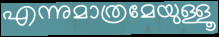
എന്നുമാത്രമേയുള്ളൂ